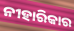
ନୀହାରିକାର